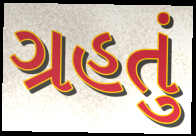
ગ્રહતું